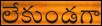
లేకుండగా